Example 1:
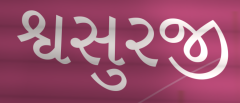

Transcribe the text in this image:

શ્વસુરજી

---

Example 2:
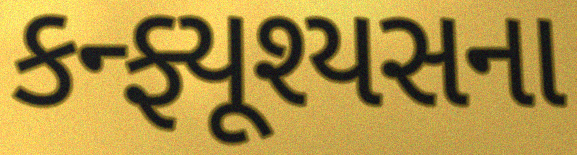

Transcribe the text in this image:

કન્ફ્યૂશ્યસના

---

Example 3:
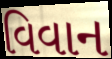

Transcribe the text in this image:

વિવાન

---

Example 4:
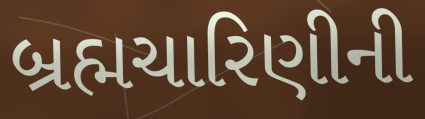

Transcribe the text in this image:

બ્રહ્મચારિણીની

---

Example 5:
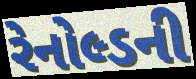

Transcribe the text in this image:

રેનોલ્ડની